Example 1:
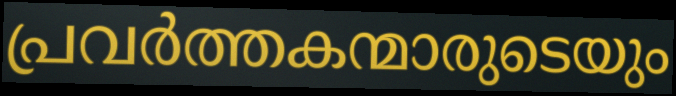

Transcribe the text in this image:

പ്രവർത്തകന്മാരുടെയും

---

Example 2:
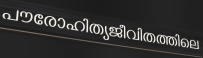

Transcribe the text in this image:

പൗരോഹിത്യജീവിതത്തിലെ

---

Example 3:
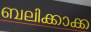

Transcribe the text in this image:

ബലിക്കാക്ക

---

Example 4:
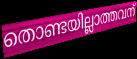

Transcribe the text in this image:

തൊണ്ടയില്ലാത്തവന്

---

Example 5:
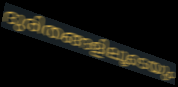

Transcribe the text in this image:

ദുരിതങ്ങളിലൂടെയും